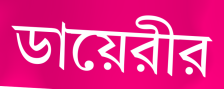
ডায়েরীর